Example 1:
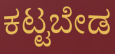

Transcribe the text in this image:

ಕಟ್ಟಬೇಡ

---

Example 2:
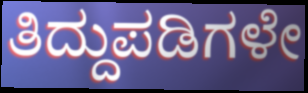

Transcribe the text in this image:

ತಿದ್ದುಪಡಿಗಳೇ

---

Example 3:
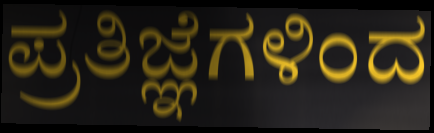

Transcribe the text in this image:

ಪ್ರತಿಜ್ಞೆಗಳಿಂದ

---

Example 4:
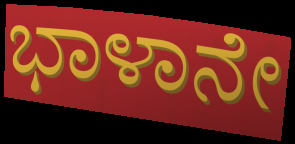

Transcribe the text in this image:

ಭಾಳಾನೇ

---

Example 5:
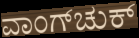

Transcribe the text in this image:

ವಾಂಗ್‌ಚುಕ್